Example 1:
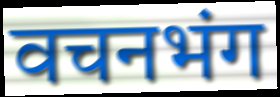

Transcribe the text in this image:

वचनभंग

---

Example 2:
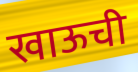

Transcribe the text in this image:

खाऊची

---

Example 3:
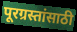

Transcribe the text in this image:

पूरग्रस्तांसाठी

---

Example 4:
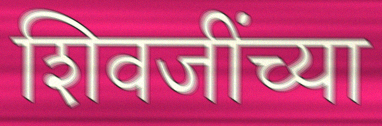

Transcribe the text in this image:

शिवजींच्या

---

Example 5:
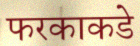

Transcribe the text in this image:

फरकाकडे